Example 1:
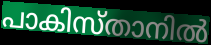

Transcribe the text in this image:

പാകിസ്താനിൽ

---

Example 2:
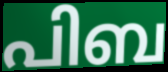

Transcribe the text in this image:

പിബ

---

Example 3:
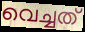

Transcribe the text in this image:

വെച്ചത്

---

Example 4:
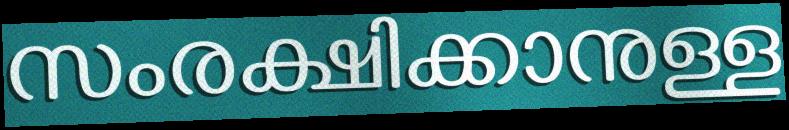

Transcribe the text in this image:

സംരക്ഷിക്കാനുള്ള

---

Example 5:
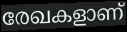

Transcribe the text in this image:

രേഖകളാണ്